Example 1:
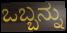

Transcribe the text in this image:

ಒಬ್ಬನ್ನು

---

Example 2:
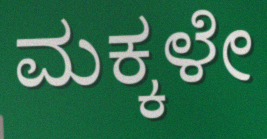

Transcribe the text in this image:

ಮಕ್ಕಳೇ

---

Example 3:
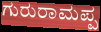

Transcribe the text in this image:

ಗುರುರಾಮಪ್ಪ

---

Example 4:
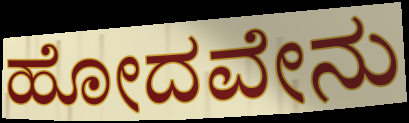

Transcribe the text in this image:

ಹೋದವೇನು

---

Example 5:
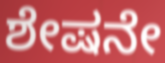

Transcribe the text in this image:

ಶೇಷನೇ